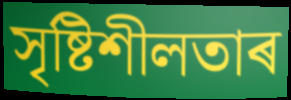
সৃষ্টিশীলতাৰ